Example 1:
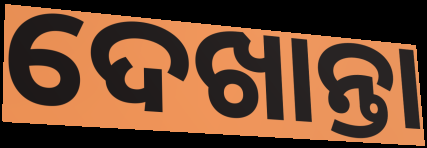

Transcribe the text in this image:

ଦେଖାନ୍ତା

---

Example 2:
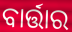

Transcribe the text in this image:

ବାର୍ତ୍ତାର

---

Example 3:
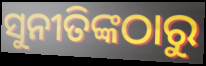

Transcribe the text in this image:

ସୁନୀତିଙ୍କଠାରୁ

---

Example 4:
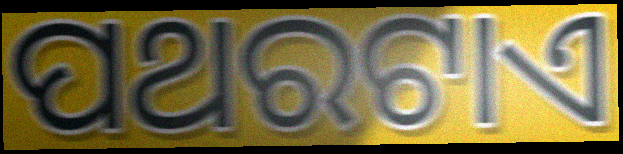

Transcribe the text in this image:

ପଥରଟାଏ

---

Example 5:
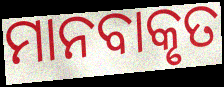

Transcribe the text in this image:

ମାନବାକୃତ